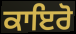
ਕਾਇਰੋ